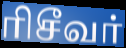
ரிசீவர்